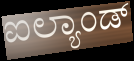
ಐಲ್ಯಾಂಡ್